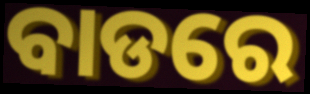
ବାଡରେ